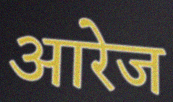
आरेज